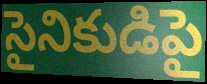
సైనికుడిపై